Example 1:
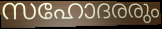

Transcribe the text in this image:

സഹോദരരും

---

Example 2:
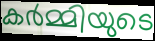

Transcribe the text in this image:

കർമ്മിയുടെ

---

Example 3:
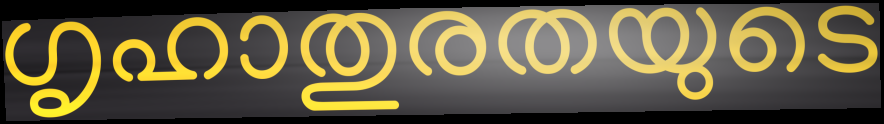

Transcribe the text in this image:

ഗൃഹാതുരതയുടെ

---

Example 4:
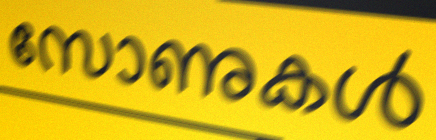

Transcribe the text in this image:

സോണുകൾ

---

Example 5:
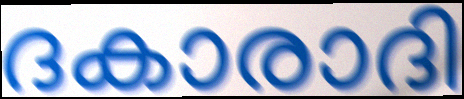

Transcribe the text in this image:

ദകാരാദി